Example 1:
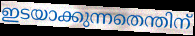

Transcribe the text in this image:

ഇടയാക്കുന്നതെന്തിന്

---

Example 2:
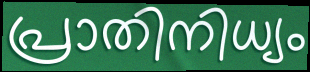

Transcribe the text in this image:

പ്രാതിനിധ്യം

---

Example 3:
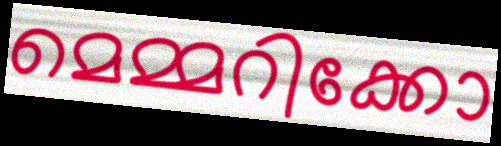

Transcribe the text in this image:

മെമ്മറിക്കോ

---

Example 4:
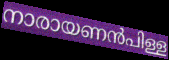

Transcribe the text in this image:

നാരായണൻപിള്ള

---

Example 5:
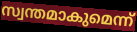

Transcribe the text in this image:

സ്വന്തമാകുമെന്ന്